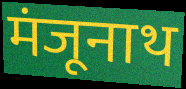
मंजूनाथ